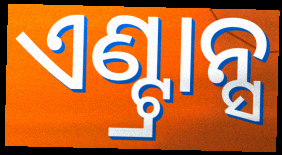
ଏଣ୍ଟ୍ରାନ୍ସ